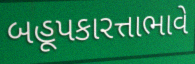
બહૂપકારત્તાભાવે